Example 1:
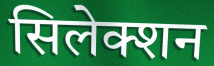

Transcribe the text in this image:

सिलेक्शन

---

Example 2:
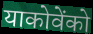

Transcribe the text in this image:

याकोवेंको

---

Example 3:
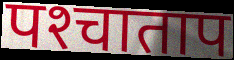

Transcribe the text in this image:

पश्चाताप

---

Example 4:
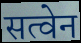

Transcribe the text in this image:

सत्वेन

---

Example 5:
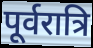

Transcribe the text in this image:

पूर्वरात्रि